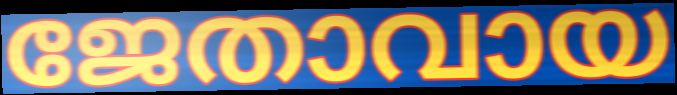
ജേതാവായ